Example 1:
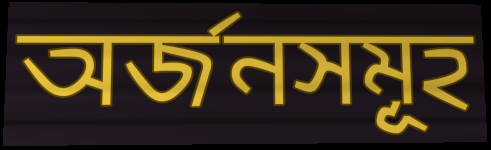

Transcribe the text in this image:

অর্জনসমূহ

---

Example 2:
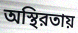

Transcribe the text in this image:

অস্থিরতায়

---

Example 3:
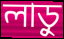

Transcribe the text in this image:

লাডু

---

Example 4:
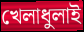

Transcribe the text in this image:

খেলাধুলাই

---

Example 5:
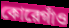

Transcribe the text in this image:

কোরেগাঁও